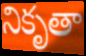
నికృతా